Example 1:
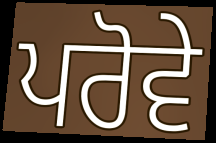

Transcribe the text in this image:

ਪਰੋਵੇ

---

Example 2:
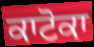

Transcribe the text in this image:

ਕਾਟੋਕਾ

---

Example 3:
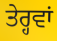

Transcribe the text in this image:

ਤੇਰ੍ਹਵਾਂ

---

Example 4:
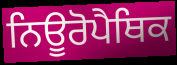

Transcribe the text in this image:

ਨਿਊਰੋਪੈਥਿਕ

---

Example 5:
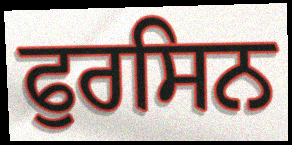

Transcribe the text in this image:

ਫੁਰਸਿਨ